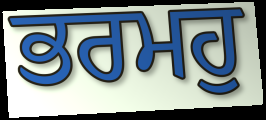
ਭਰਮਹੁ